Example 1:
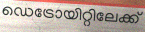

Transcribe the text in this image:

ഡെട്രോയിറ്റിലേക്ക്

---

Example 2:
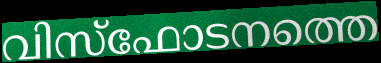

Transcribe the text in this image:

വിസ്ഫോടനത്തെ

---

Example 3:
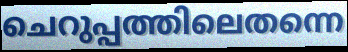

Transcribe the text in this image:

ചെറുപ്പത്തിലെതന്നെ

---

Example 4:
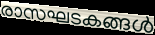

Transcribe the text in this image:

രാസഘടകങ്ങൾ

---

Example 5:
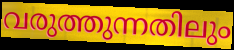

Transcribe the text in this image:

വരുത്തുന്നതിലും